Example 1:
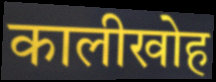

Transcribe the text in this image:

कालीखोह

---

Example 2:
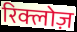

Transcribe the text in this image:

रिक्लोज़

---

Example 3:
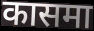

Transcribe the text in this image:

कासमा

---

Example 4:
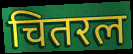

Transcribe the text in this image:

चितरल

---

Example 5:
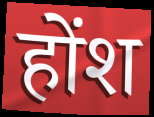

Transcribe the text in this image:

होंश